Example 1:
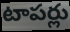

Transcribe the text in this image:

టాపర్లు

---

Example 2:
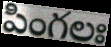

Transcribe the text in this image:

పింగలః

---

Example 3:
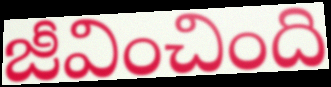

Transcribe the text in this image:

జీవించింది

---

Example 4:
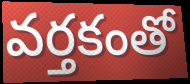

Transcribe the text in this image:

వర్తకంతో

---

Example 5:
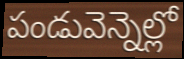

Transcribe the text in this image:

పండువెన్నెల్లో